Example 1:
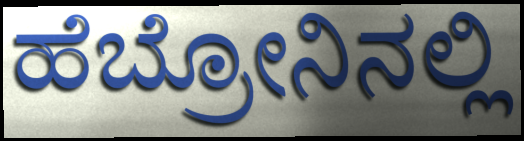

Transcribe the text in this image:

ಹೆಬ್ರೋನಿನಲ್ಲಿ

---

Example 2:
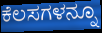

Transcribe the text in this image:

ಕೆಲಸಗಳನ್ನೂ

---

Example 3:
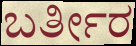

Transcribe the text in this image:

ಬರ್ತೀರ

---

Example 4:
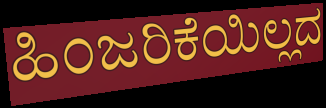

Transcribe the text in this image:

ಹಿಂಜರಿಕೆಯಿಲ್ಲದ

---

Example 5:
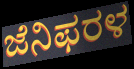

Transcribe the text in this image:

ಜೆನಿಫರಳ